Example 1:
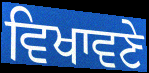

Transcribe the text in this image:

ਵਿਖਾਵਣੇ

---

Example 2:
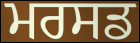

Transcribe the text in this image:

ਮਰਸਡ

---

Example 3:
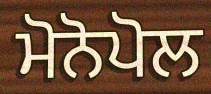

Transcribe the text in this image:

ਮੋਨੋਪੋਲ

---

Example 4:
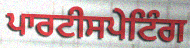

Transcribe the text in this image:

ਪਾਰਟੀਸਪੇਟਿੰਗ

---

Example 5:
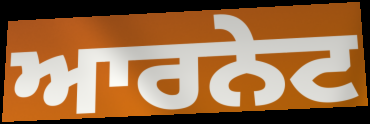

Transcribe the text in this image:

ਆਰਨੇਟ